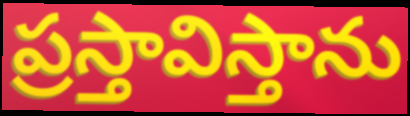
ప్రస్తావిస్తాను